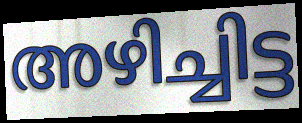
അഴിച്ചിട്ട